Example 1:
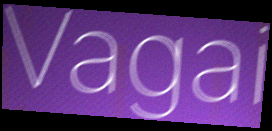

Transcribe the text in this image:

Vagai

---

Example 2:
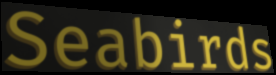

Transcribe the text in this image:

Seabirds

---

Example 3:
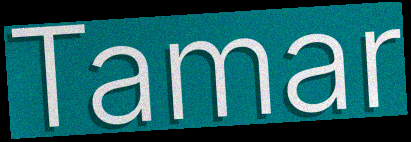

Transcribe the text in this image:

Tamar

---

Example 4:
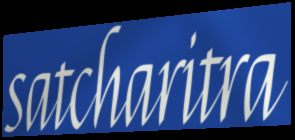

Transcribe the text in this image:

satcharitra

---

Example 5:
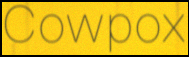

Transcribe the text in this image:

Cowpox